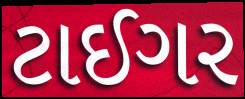
ટાઈગર